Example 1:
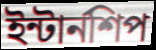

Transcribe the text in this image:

ইন্টার্নশিপ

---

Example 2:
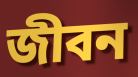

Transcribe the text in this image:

জীবন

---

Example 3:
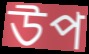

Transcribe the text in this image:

উপ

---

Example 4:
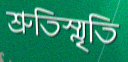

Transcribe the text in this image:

শ্রুতিস্মৃতি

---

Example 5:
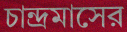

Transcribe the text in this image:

চান্দ্রমাসের